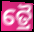
ତ୍ରୈ